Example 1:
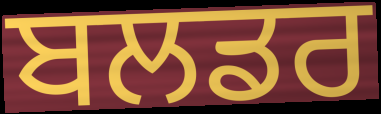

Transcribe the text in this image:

ਬਲਡਰ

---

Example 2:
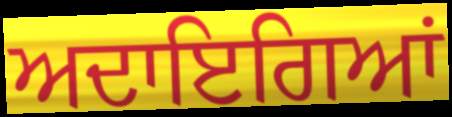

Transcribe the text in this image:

ਅਦਾਇਗਿਆਂ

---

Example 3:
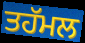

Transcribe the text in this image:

ਤਹੱਮਲ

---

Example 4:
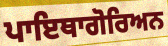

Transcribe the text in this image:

ਪਾਇਥਾਗੋਰਿਅਨ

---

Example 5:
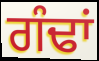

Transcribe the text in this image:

ਗੰਢਾਂ